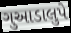
ગુઆડાલુપે